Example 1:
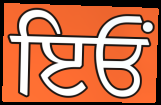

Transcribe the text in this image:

ਇਓਂ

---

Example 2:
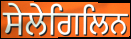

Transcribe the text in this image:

ਸੇਲੇਗਿਲਿਨ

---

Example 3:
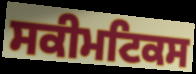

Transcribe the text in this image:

ਸਕੀਮਟਿਕਸ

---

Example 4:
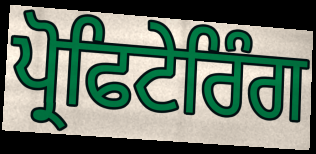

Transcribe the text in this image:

ਪ੍ਰੋਫਿਟੇਰਿੰਗ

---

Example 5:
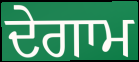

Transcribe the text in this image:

ਦੇਗਾਮ